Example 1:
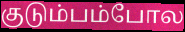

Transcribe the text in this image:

குடும்பம்போல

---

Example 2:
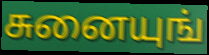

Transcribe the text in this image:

சுனையுங்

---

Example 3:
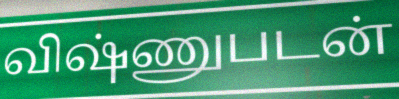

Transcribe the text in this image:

விஷ்ணுபடன்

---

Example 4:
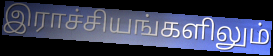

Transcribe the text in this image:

இராச்சியங்களிலும்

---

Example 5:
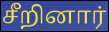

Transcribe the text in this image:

சீறினார்